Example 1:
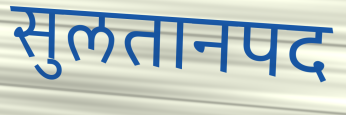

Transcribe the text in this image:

सुलतानपद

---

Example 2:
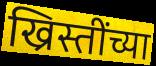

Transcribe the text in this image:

ख्रिस्तींच्या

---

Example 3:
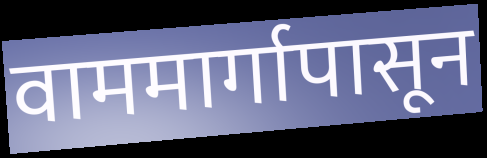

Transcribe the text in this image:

वाममार्गापासून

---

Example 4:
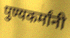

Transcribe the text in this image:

पुण्यकर्मांनी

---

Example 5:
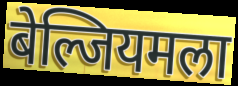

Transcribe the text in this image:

बेल्जियमला